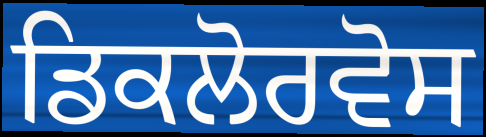
ਡਿਕਲੋਰਵੋਸ